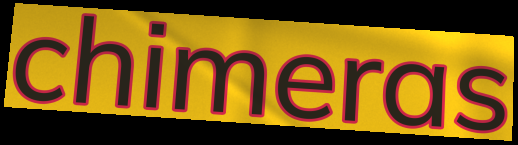
chimeras